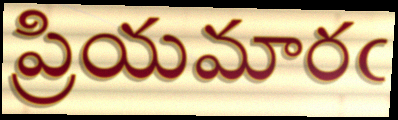
ప్రియమారఁ